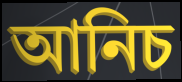
আনিচ